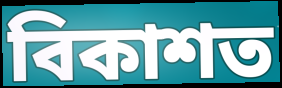
বিকাশত